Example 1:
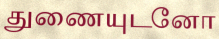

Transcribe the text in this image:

துணையுடனோ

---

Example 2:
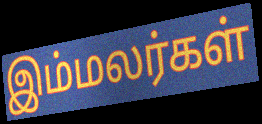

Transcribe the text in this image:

இம்மலர்கள்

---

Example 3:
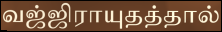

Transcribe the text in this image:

வஜ்ஜிராயுதத்தால்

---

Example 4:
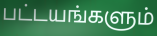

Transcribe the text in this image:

பட்டயங்களும்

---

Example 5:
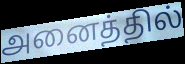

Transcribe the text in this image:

அனைத்தில்